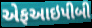
એફઆઇપીબી